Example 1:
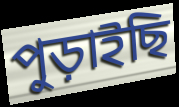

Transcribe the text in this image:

পুড়াইছি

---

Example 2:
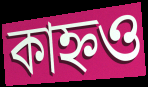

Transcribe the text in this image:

কাহ্নও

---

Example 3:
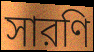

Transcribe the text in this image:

সারণি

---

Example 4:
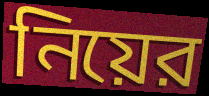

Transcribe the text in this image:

নিয়ের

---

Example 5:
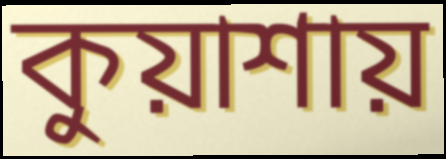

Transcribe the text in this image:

কুয়াশায়